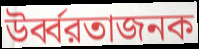
উর্ব্বরতাজনক